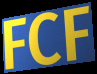
FCF